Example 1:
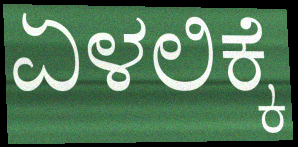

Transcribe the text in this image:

ಏಳಲಿಕ್ಕೆ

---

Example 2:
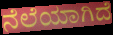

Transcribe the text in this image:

ನೆಲೆಯಾಗಿದೆ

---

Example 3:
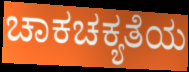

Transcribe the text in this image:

ಚಾಕಚಕ್ಯತೆಯ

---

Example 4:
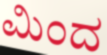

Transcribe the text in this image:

ಮಿಂದ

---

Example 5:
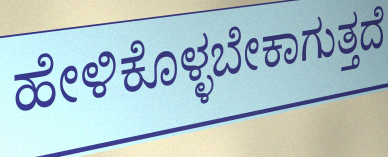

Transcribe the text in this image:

ಹೇಳಿಕೊಳ್ಳಬೇಕಾಗುತ್ತದೆ